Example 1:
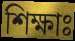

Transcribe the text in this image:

শিক্ষাঃ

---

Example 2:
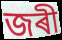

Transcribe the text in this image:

জৰী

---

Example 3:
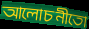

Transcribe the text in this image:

আলোচনীতো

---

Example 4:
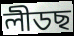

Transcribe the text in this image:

লীডছ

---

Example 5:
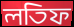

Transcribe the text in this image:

লতিফ